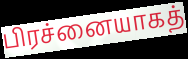
பிரச்னையாகத்